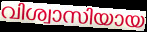
വിശ്വാസിയായ